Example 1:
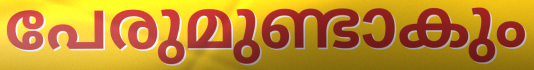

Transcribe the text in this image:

പേരുമുണ്ടാകും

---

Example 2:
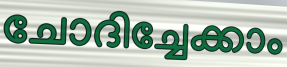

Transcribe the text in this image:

ചോദിച്ചേക്കാം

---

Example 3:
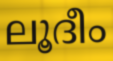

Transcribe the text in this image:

ലൂദീം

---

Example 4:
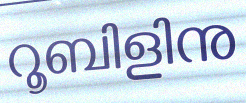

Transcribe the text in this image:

റൂബിളിനു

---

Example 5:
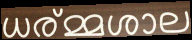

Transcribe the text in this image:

ധര്മ്മശാല